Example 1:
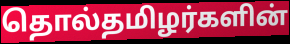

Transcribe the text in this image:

தொல்தமிழர்களின்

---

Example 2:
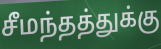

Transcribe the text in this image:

சீமந்தத்துக்கு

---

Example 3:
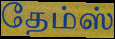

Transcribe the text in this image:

தேம்ஸ்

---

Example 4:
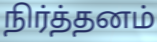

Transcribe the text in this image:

நிர்த்தனம்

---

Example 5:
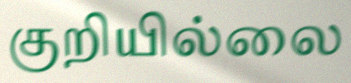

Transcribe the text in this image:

குறியில்லை